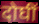
दोघीं